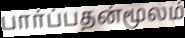
பார்ப்பதன்மூலம்